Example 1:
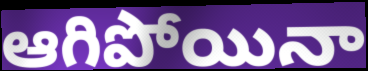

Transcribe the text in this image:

ఆగిపోయినా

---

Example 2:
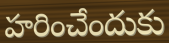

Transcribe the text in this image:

హరించేందుకు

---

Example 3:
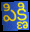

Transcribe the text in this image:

పిక్ణి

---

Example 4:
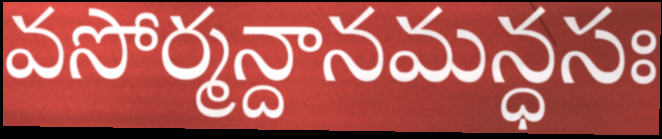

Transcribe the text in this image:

వసోర్మన్దానమన్ధసః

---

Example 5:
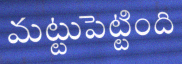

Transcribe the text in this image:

మట్టుపెట్టింది